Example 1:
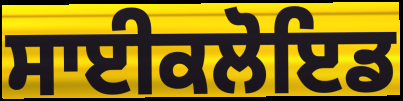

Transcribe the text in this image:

ਸਾਈਕਲੋਇਡ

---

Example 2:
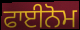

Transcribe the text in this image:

ਫਾਈਨੋਮ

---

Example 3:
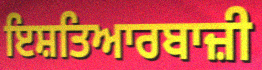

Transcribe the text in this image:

ਇਸ਼ਤਿਆਰਬਾਜ਼ੀ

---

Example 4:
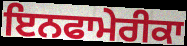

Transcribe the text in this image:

ਇਨਫਾਮੇਰੀਕਾ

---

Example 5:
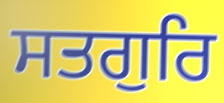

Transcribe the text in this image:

ਸਤਗੁਰਿ